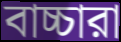
বাচ্চারা